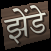
झेंडे